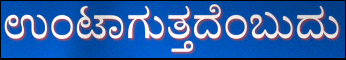
ಉಂಟಾಗುತ್ತದೆಂಬುದು